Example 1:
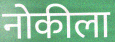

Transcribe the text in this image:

नोकीला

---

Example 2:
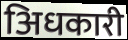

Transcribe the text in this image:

अिधकारी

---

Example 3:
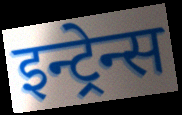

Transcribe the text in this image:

इन्ट्रेन्स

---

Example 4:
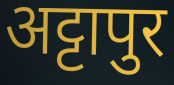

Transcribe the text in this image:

अट्टापुर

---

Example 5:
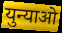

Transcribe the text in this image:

युन्याओ